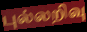
புல்லறிவு